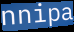
nnipa